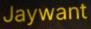
Jaywant